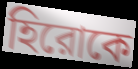
হিরোকে